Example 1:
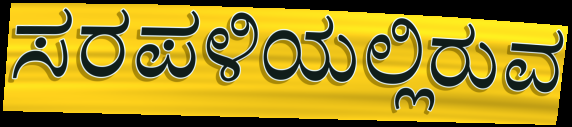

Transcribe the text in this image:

ಸರಪಳಿಯಲ್ಲಿರುವ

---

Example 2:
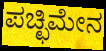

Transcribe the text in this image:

ಪಚ್ಛಿಮೇನ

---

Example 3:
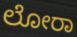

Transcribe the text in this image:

ಲೋರಾ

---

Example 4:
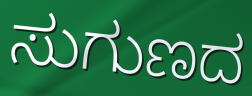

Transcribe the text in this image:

ಸುಗುಣದ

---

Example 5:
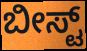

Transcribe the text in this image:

ಬೀಸ್ಟ್